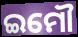
ଇମୌ